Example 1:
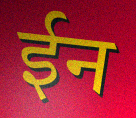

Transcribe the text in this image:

ईन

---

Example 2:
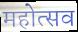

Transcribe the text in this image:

महोत्सव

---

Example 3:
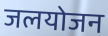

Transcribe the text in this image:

जलयोजन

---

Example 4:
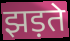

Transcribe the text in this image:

झड़ते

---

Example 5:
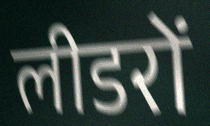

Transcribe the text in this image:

लीडरों